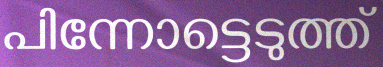
പിന്നോട്ടെടുത്ത്